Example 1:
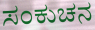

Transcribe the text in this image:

ಸಂಕುಚನ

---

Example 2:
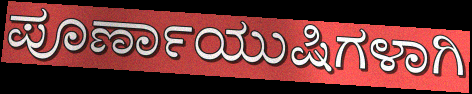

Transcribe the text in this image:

ಪೂರ್ಣಾಯುಷಿಗಳಾಗಿ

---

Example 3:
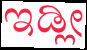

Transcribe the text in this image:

ಇಡ್ಲೀ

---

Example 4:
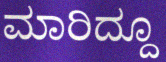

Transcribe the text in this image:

ಮಾರಿದ್ದೂ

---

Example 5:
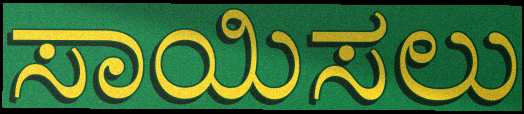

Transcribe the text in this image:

ಸಾಯಿಸಲು